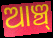
ଆଞ୍ଚ୍